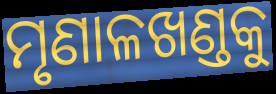
ମୃଣାଳଖଣ୍ଡକୁ